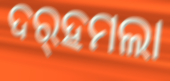
ଦର୍‌ହମଲା